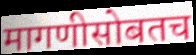
मागणीसोबतच